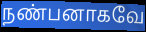
நண்பனாகவே